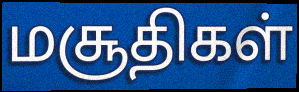
மசூதிகள்